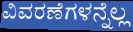
ವಿವರಣೆಗಳನ್ನೆಲ್ಲ